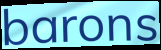
barons